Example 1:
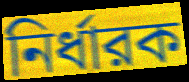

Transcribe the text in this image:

নির্ধারক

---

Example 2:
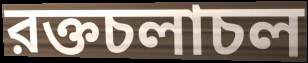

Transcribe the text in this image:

রক্তচলাচল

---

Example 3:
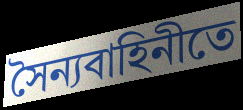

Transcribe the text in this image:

সৈন্যবাহিনীতে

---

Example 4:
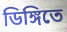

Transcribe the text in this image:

ডিঙ্গিতে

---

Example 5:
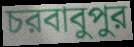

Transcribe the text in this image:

চরবাবুপুর